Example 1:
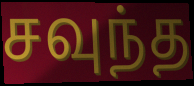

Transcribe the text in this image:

சவுந்த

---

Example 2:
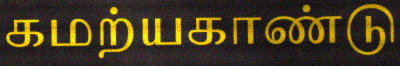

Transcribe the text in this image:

கமற்யகாண்டு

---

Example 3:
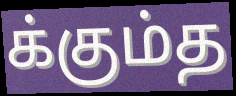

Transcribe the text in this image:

க்கும்த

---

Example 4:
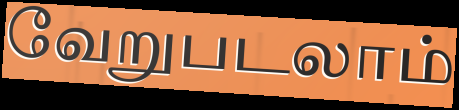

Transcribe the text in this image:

வேறுபடலாம்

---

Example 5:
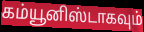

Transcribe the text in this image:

கம்யூனிஸ்டாகவும்